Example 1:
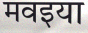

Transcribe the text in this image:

मवइया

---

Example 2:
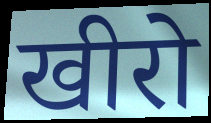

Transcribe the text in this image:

खीरो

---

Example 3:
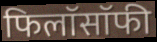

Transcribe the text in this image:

फिलॉसॉफी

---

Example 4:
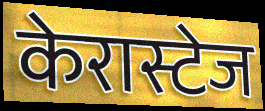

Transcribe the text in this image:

केरास्टेज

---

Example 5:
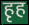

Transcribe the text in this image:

हृह